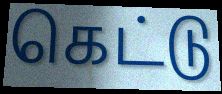
கெட்டு